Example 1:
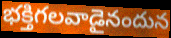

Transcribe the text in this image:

భక్తిగలవాడైనందున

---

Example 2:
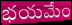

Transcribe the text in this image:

భయమేం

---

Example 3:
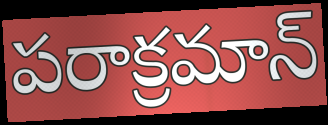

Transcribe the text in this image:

పరాక్రమాన్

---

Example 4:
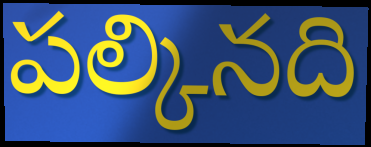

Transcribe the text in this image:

పల్కినది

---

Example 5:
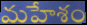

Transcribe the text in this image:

మహేశం